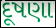
દૂષણા